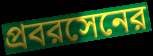
প্রবরসেনের